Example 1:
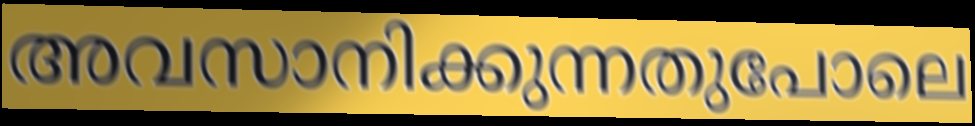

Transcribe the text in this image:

അവസാനിക്കുന്നതുപോലെ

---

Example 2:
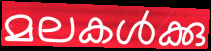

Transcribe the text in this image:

മലകൾക്കു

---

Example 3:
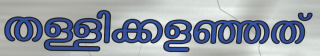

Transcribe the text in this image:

തള്ളിക്കളഞ്ഞത്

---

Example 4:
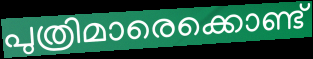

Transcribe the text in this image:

പുത്രിമാരെക്കൊണ്ട്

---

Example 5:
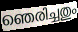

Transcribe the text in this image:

ഞെരിച്ചതും